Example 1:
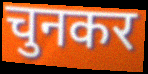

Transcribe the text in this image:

चुनकर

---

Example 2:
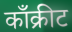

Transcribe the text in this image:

काँक्रीट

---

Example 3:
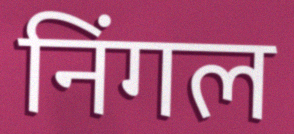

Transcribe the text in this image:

निंगल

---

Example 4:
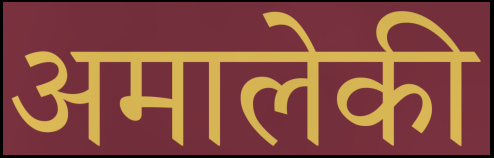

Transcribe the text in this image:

अमालेकी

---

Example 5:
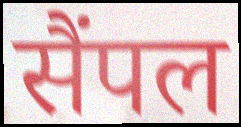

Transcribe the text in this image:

सैंपल